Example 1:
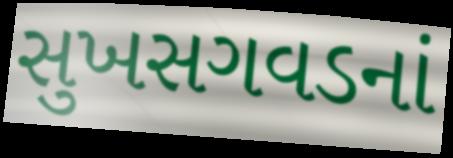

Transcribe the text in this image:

સુખસગવડનાં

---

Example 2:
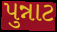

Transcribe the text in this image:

પુન્નાટ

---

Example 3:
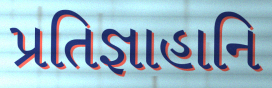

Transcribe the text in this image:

પ્રતિજ્ઞાહાનિ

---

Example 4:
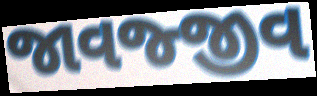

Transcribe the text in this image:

જાવજ્જીવ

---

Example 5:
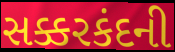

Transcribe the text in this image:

સક્કરકંદની